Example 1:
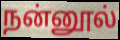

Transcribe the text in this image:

நன்னூல்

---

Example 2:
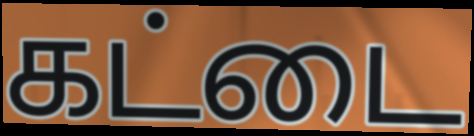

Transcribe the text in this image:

கட்டை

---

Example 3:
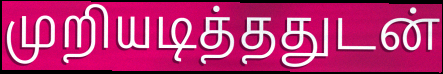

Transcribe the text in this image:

முறியடித்ததுடன்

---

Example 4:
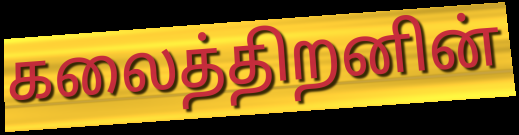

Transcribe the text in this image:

கலைத்திறனின்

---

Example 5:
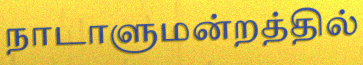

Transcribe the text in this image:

நாடாளுமன்றத்தில்